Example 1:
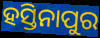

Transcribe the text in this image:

ହସ୍ତିନାପୁର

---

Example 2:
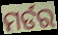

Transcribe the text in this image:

ମର୍ଡର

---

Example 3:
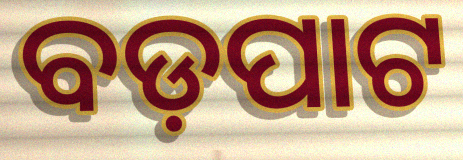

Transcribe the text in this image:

ବଡ଼ପାଟ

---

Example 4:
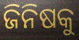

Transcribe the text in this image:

ଜିନିଷକୁ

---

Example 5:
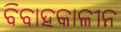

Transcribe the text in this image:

ବିବାହକାଳୀନ